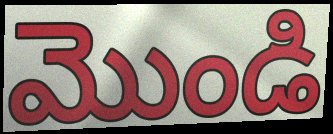
మొండి